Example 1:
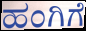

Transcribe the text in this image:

ಹಂಗಿಗೆ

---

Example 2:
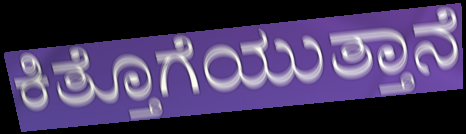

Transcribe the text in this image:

ಕಿತ್ತೊಗೆಯುತ್ತಾನೆ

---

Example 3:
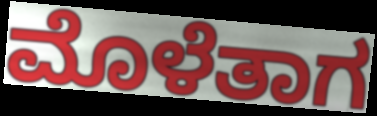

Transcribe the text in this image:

ಮೊಳೆತಾಗ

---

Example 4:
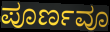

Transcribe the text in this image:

ಪೂರ್ಣವೂ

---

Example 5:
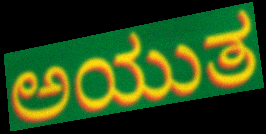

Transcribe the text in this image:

ಅಯುತ